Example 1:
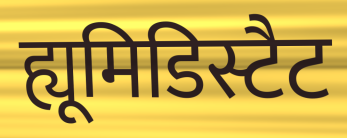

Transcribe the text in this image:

ह्यूमिडिस्टैट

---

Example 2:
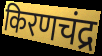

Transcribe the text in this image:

किरणचंद्र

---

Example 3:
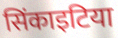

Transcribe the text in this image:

सिंकाइटिया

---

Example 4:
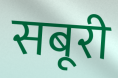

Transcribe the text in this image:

सबूरी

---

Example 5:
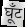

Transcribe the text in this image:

घूँट